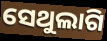
ସେଥୁଲାଗି